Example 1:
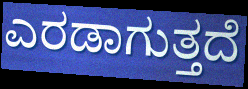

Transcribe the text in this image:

ಎರಡಾಗುತ್ತದೆ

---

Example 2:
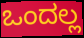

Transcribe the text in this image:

ಒಂದಲ್ಲ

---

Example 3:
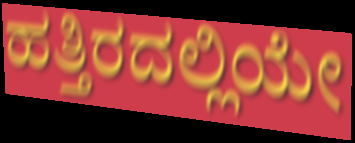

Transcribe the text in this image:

ಹತ್ತಿರದಲ್ಲಿಯೇ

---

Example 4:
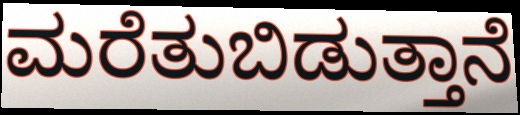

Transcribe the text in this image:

ಮರೆತುಬಿಡುತ್ತಾನೆ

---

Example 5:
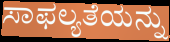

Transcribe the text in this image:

ಸಾಫಲ್ಯತೆಯನ್ನು